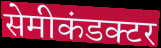
सेमीकंडक्टर